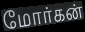
மோர்கன்